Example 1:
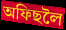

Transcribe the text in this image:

অফিছলৈ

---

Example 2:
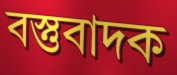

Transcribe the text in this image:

বস্তুবাদক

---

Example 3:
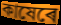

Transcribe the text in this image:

কাষেৰে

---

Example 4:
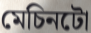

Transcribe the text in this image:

মেচিনটো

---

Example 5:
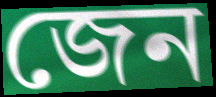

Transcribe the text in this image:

জেন